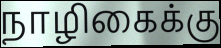
நாழிகைக்கு